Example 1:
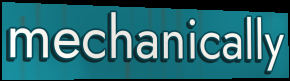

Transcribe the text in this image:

mechanically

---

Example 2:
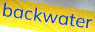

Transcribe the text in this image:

backwater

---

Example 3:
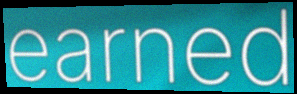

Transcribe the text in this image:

earned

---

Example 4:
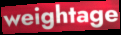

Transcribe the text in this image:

weightage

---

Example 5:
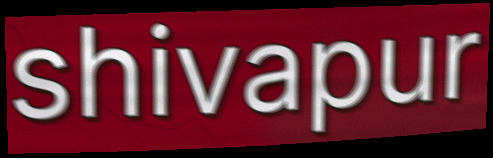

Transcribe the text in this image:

shivapur